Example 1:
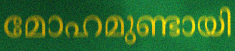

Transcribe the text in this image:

മോഹമുണ്ടായി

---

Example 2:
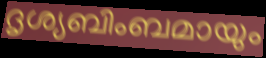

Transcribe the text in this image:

ദൃശ്യബിംബമായും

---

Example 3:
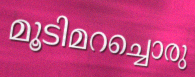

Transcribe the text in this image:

മൂടിമറച്ചൊരു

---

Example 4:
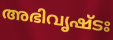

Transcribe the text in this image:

അഭിവൃഷ്ടഃ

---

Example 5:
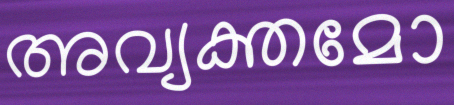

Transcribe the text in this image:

അവ്യക്തമോ